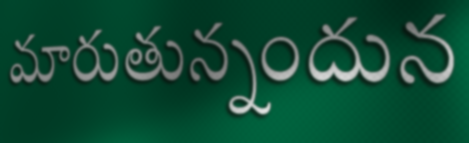
మారుతున్నందున